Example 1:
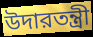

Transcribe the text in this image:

উদারতন্ত্রী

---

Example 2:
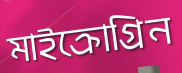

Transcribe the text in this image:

মাইক্রোগ্রিন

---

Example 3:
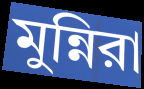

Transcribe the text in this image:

মুন্নিরা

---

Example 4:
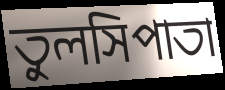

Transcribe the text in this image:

তুলসিপাতা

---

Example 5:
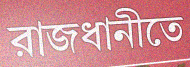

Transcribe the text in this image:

রাজধানীতে